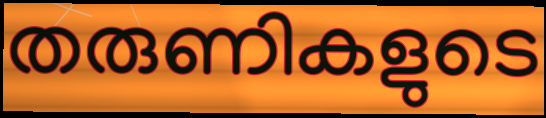
തരുണികളുടെ